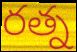
రత్న